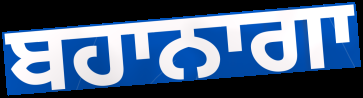
ਬਹਾਨਾਗਾ